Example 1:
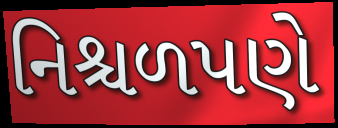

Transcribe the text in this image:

નિશ્ચળપણે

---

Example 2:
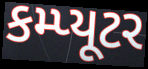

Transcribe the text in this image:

કમ્પ્યૂટર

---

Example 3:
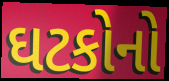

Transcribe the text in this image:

ઘટકોનો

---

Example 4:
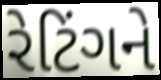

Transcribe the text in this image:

રેટિંગને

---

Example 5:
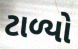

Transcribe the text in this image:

ટાળ્યો